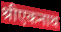
श्रीएकनाथ